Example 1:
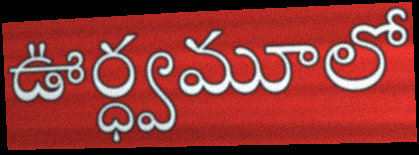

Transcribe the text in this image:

ఊర్ధ్వమూలో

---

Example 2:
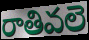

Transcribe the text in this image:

రాతివలె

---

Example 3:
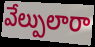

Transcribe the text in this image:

వేల్పులారా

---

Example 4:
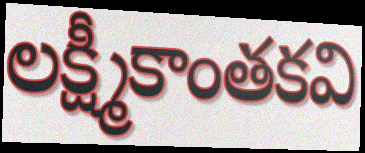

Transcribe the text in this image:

లక్ష్మీకాంతకవి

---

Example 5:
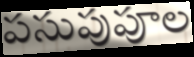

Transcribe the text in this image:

పసుపుపూల